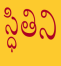
స్ధితిని